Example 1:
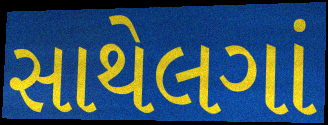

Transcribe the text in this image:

સાથેલગાં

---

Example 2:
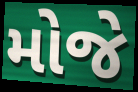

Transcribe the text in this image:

મોજે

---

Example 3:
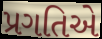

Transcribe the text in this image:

પ્રગતિએ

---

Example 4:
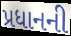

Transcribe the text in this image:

પ્રધાનની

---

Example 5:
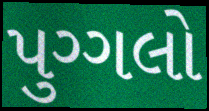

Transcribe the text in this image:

પુગ્ગલો